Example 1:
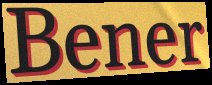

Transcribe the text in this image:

Bener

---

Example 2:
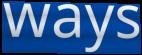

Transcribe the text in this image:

ways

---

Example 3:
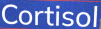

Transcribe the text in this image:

Cortisol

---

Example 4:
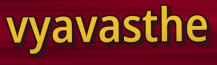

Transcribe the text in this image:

vyavasthe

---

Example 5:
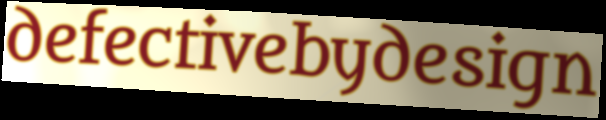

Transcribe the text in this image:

defectivebydesign